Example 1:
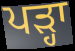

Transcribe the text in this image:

ਪੜ੍ਹਾ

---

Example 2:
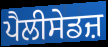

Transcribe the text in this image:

ਪੈਲੀਸੇਡਜ਼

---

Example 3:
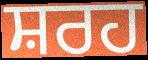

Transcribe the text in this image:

ਸ਼ਰਹ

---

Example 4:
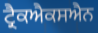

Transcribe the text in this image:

ਟ੍ਰੈਕਐਕਸਐਨ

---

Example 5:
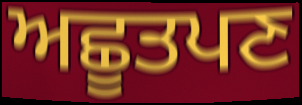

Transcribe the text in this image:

ਅਛੂਤਪਣ